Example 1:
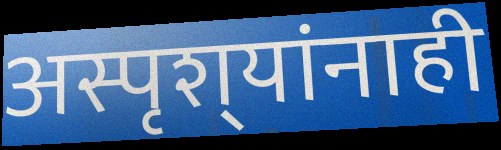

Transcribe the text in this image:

अस्पृश्यांनाही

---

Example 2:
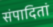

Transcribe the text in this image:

संपादितां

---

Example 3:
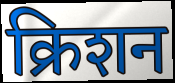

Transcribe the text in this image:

क्रिशन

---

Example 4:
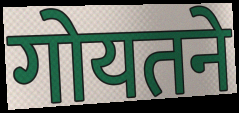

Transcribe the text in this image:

गोयतने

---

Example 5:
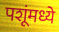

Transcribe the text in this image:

पशूंमध्ये